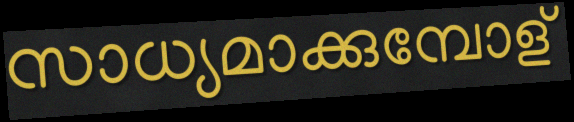
സാധ്യമാക്കുമ്പോള്